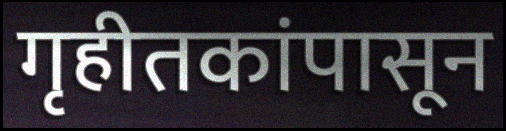
गृहीतकांपासून